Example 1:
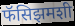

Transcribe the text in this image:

फॅसिझमशी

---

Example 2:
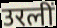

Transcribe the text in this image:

उरलीं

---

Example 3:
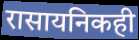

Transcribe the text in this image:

रासायनिकही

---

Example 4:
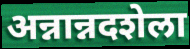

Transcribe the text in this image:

अन्नान्नदशेला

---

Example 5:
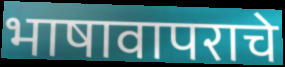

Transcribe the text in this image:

भाषावापराचे